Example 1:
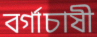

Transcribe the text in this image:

বর্গাচাষী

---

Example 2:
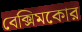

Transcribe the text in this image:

বেক্সিমকোর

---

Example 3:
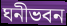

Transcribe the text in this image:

ঘনীভবন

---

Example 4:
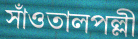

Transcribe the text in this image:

সাঁওতালপল্লী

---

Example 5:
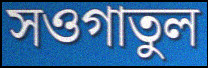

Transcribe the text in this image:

সওগাতুল